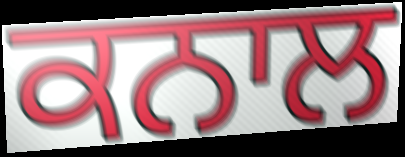
ਕਨਾਲ